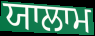
ਯਾਲਾਮ